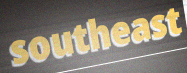
southeast